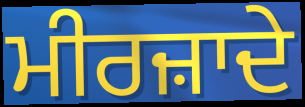
ਮੀਰਜ਼ਾਦੇ